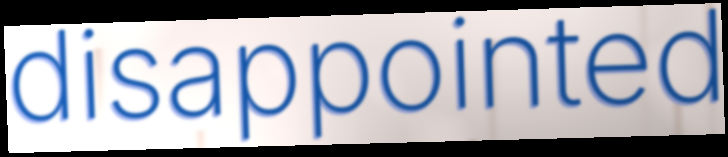
disappointed